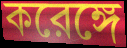
করেঙ্গে